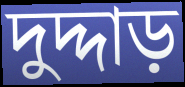
দুদ্দাড়